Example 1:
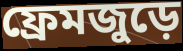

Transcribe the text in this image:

ফ্রেমজুড়ে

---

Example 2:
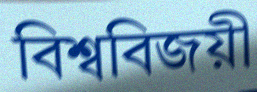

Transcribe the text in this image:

বিশ্ববিজয়ী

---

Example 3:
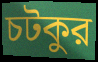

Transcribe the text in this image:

চটকুর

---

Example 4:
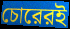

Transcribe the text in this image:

চোরেরই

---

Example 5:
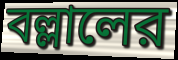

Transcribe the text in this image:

বল্লালের